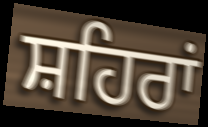
ਸ਼ਹਿਰਾਂ